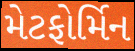
મેટફોર્મિન